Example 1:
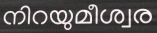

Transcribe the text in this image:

നിറയുമീശ്വര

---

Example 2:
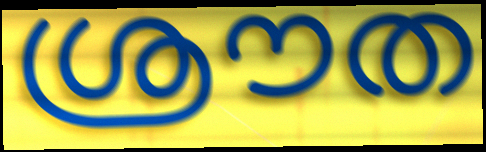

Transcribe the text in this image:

ശ്രൗത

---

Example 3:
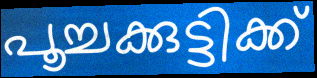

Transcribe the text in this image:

പൂച്ചക്കുട്ടിക്ക്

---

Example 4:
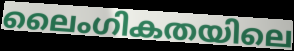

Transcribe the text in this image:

ലൈംഗികതയിലെ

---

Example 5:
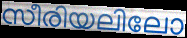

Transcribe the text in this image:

സീരിയലിലോ